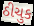
ઠીચુક